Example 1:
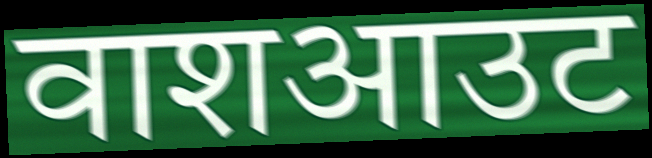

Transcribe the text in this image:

वाशआउट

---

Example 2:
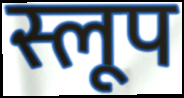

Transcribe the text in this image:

स्लूप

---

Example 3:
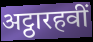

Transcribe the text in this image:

अट्ठारहवीं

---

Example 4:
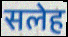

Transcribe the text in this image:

सलेह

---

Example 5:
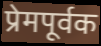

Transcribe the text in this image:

प्रेमपूर्वक